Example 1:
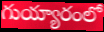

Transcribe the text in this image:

గుయ్యారంలో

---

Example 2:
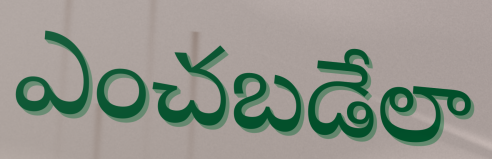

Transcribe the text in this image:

ఎంచబడేలా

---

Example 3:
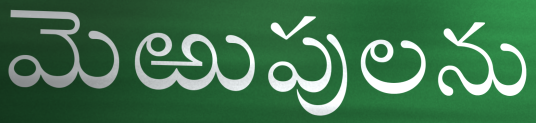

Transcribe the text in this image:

మెఱుపులను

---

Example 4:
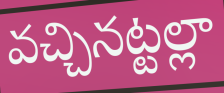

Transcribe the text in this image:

వచ్చినట్టల్లా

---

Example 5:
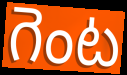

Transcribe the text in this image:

గెంట